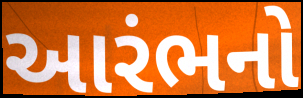
આરંભનો